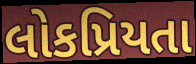
લોકપ્રિયતા